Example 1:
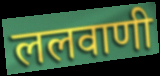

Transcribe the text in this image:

ललवाणी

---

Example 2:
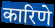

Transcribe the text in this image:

कारिणे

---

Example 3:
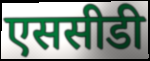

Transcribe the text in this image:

एससीडी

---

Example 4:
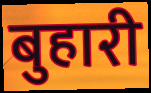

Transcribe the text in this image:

बुहारी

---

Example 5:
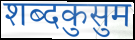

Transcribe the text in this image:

शब्दकुसुम